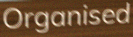
Organised